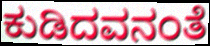
ಕುಡಿದವನಂತೆ